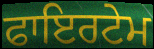
ਫਾਇਰਟੇਮ